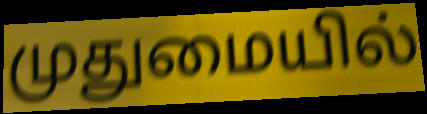
முதுமையில்